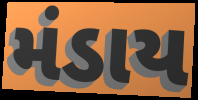
મંડાય